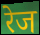
रेज